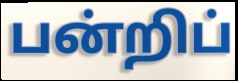
பன்றிப்